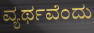
ವ್ಯರ್ಥವೆಂದು